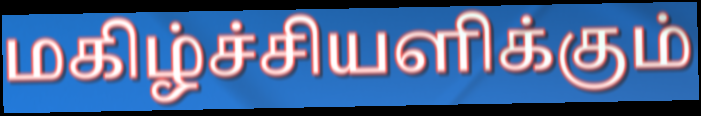
மகிழ்ச்சியளிக்கும்